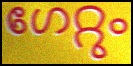
ഗേറ്റും